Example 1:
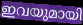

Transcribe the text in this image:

ഇവയുമായി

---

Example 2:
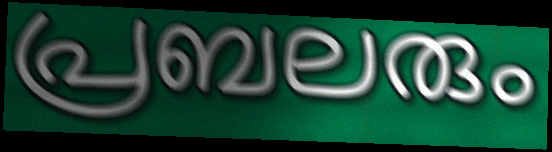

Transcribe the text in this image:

പ്രബലരും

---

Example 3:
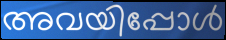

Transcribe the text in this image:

അവയിപ്പോൾ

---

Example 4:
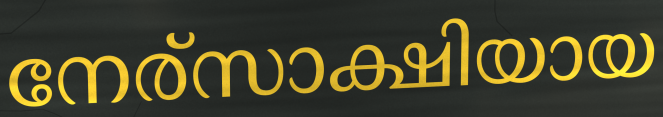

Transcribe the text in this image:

നേര്സാക്ഷിയായ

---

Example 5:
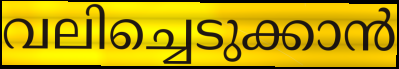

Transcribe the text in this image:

വലിച്ചെടുക്കാൻ